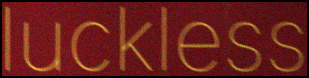
luckless